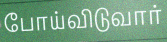
போய்விடுவார்